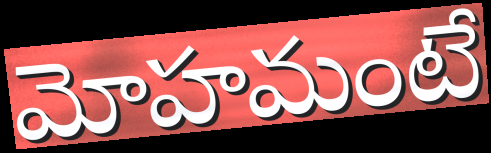
మోహమంటే